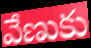
వేణుకు